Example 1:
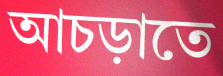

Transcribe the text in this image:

আচড়াতে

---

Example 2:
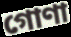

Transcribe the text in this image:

গোণা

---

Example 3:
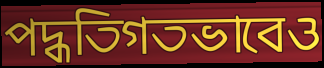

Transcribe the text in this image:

পদ্ধতিগতভাবেও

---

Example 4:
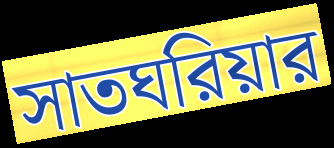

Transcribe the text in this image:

সাতঘরিয়ার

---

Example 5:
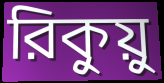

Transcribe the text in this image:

রিকুয়ু